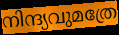
നിന്ദ്യവുമത്രേ